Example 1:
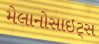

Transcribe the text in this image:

મેલાનોસાઇટ્સ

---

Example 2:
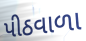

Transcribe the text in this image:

પીઠવાળા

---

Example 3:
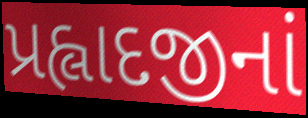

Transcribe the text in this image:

પ્રહ્લાદજીનાં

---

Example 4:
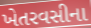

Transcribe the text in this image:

ખેતરવસીના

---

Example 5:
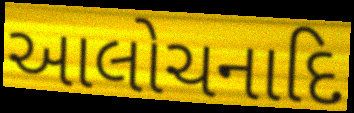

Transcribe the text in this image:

આલોચનાદિ